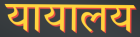
यायालय